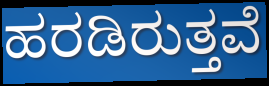
ಹರಡಿರುತ್ತವೆ